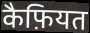
कैफ़ियत